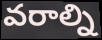
వరాల్ని